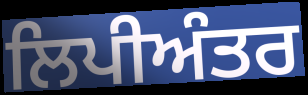
ਲਿਪੀਅੰਤਰ